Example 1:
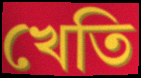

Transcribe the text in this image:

খেতি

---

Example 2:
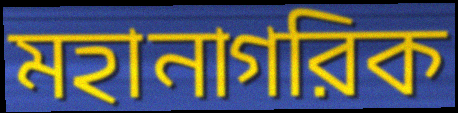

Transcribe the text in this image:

মহানাগরিক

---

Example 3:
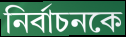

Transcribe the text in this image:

নির্বাচনকে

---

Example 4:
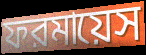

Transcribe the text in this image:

ফরমায়েস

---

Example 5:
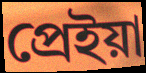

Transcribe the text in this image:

প্রেইয়া